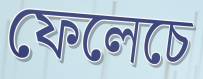
ফেলেচে